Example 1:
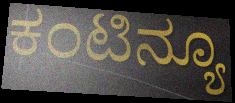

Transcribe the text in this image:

ಕಂಟಿನ್ಯೂ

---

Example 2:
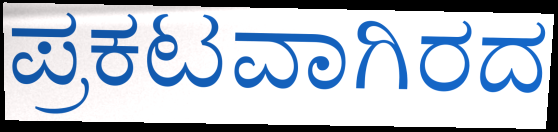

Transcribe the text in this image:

ಪ್ರಕಟವಾಗಿರದ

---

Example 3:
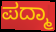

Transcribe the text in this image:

ಪದ್ಮಾ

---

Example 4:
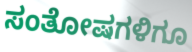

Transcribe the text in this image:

ಸಂತೋಷಗಳಿಗೂ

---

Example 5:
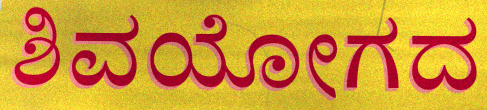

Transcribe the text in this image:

ಶಿವಯೋಗದ